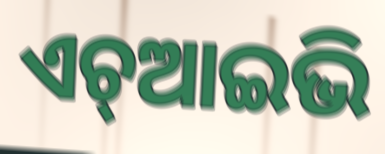
ଏଚ୍ଆଇଭି